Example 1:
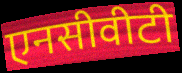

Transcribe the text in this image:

एनसीवीटी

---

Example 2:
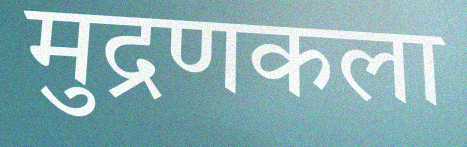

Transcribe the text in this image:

मुद्रणकला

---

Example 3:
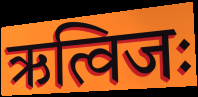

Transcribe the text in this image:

ऋत्विजः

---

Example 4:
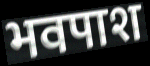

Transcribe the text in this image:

भवपाश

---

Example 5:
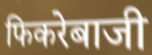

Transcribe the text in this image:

फिकरेबाजी